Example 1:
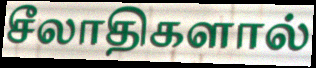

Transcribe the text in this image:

சீலாதிகளால்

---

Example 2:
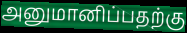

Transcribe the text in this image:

அனுமானிப்பதற்கு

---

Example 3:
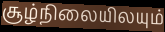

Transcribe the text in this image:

சூழ்நிலையிலயும்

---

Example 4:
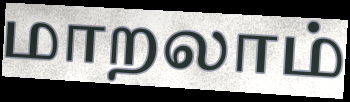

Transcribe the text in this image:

மாறலாம்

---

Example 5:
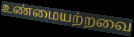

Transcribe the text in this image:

உண்மையற்றவை